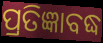
ପ୍ରତିଜ୍ଞାବଦ୍ଧ